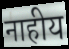
नाहीय